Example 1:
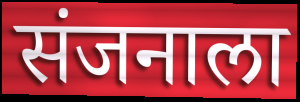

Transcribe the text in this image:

संजनाला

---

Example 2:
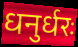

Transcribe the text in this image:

धनुर्धरः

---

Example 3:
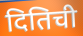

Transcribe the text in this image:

दितिची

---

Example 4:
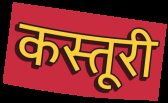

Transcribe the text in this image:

कस्तूरी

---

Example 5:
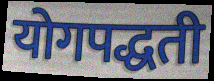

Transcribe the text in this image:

योगपद्धती